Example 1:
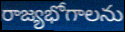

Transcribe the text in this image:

రాజ్యభోగాలను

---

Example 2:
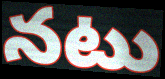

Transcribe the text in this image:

నటు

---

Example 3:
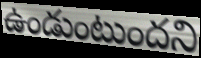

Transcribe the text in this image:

ఉండుంటుందని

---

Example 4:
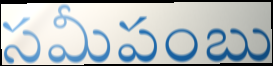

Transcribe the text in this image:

సమీపంబు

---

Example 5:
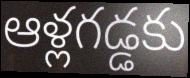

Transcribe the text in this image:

ఆళ్లగడ్డకు